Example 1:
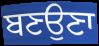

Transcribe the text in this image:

ਬਣਉਣਾ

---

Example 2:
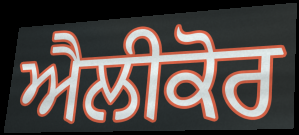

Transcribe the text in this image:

ਐਲੀਕੋਰ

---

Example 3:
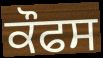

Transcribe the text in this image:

ਕੌਫਸ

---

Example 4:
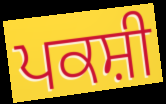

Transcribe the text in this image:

ਪਕਸ਼ੀ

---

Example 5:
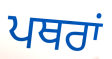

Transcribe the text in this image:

ਪਥਰਾਂ